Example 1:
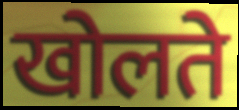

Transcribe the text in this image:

खोलते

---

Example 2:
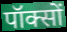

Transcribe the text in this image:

पॉक्सों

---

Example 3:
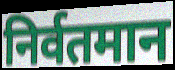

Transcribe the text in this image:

निर्वतमान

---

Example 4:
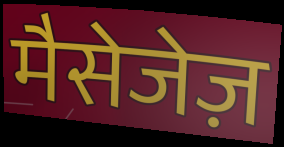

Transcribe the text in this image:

मैसेजेज़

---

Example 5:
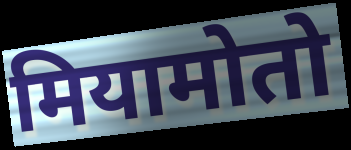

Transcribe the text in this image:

मियामोतो